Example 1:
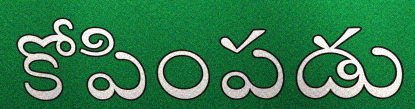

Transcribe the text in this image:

కోపింపడు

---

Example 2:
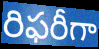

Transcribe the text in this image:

రిఫరీగా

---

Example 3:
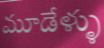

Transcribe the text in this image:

మూడేళ్ళు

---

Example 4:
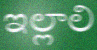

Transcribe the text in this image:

ఇల్లాలి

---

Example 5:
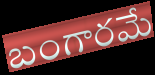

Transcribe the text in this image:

బంగారమే